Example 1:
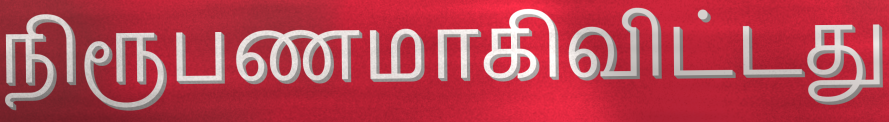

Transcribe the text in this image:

நிரூபணமாகிவிட்டது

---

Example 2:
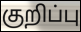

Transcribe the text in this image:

குறிப்பு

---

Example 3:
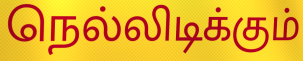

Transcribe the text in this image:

நெல்லிடிக்கும்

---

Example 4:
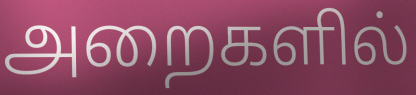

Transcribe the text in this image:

அறைகளில்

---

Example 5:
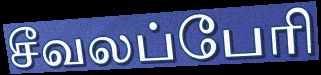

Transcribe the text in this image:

சீவலப்பேரி